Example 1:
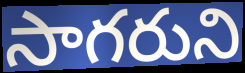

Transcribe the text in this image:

సాగరుని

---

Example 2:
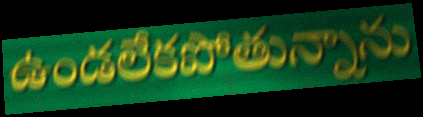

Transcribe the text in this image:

ఉండలేకపోతున్నాను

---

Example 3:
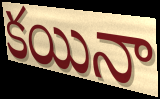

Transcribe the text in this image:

కయినా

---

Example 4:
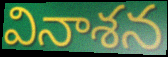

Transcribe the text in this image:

వినాశన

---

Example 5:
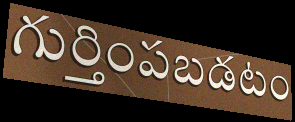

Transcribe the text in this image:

గుర్తింపబడటం